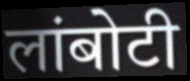
लांबोटी